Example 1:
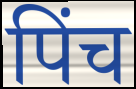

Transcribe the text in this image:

पिंच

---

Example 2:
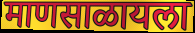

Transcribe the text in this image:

माणसाळायला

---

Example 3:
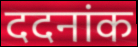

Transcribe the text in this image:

ददनांक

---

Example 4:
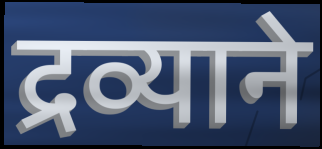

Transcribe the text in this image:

द्रव्याने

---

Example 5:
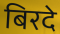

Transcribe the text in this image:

बिरदे